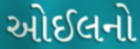
ઓઈલનો